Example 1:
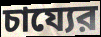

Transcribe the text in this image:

চায্যের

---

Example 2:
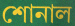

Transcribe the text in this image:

শোনাল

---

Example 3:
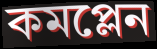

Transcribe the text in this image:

কমপ্লেন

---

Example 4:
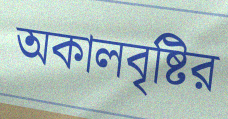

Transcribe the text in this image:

অকালবৃষ্টির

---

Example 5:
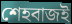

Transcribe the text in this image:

শেহবাজই